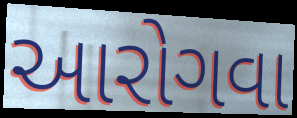
આરોગવા